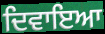
ਦਿਵਾਇਆ